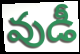
వుడీ